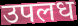
उपलध